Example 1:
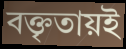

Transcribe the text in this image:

বক্তৃতায়ই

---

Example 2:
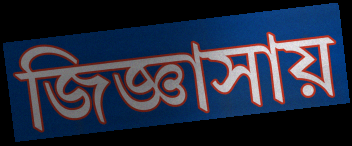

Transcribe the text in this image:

জিজ্ঞাসায়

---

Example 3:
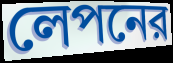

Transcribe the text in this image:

লেপনের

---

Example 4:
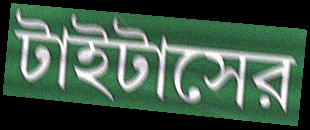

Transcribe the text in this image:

টাইটাসের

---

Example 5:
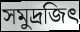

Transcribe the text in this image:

সমুদ্রজিৎ